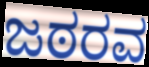
ಜಠರವ